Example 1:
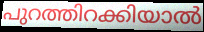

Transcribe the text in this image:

പുറത്തിറക്കിയാൽ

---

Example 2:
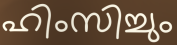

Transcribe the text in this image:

ഹിംസിച്ചും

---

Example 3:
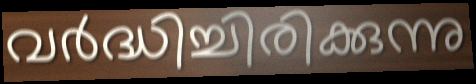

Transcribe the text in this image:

വർദ്ധിച്ചിരിക്കുന്നു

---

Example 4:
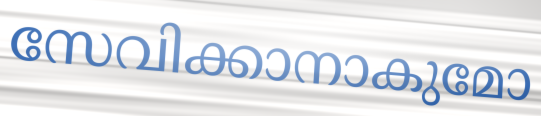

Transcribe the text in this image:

സേവിക്കാനാകുമോ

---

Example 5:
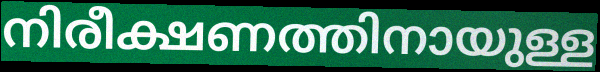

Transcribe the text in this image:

നിരീക്ഷണത്തിനായുള്ള